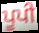
ਪੂਪੀ